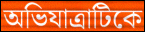
অভিযাত্রাটিকে